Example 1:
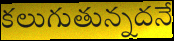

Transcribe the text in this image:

కలుగుతున్నదనే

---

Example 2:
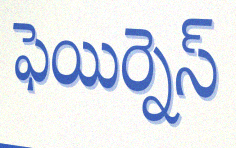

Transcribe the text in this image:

ఫెయిర్నెస్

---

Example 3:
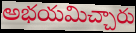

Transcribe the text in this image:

అభయమిచ్చారు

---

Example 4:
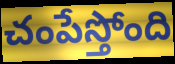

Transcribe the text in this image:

చంపేస్తోంది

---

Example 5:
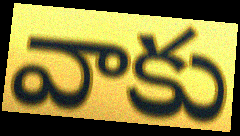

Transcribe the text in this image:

వాకు